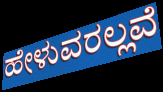
ಹೇಳುವರಲ್ಲವೆ